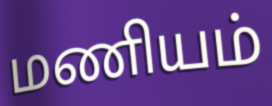
மணியம்